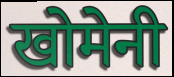
खोमेनी